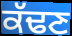
ਕੱਢਣ